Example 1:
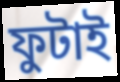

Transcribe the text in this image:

ফুটাই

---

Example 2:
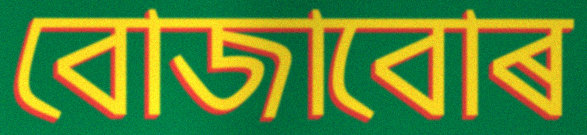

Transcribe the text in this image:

বোজাবোৰ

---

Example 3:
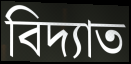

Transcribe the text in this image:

বিদ্যাত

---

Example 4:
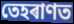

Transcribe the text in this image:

তেহৰাণত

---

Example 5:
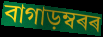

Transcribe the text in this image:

বাগাড়ম্বৰৰ